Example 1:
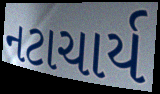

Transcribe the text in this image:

નટાચાર્ય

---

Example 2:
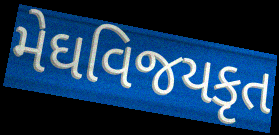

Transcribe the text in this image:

મેઘવિજયકૃત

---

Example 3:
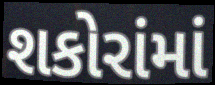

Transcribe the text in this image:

શકોરાંમાં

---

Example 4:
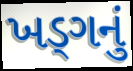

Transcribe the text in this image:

ખડ્ગનું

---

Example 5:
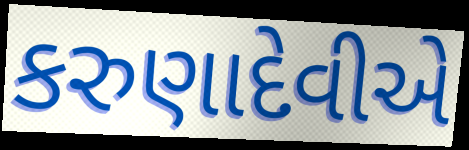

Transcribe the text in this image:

કરુણાદેવીએ